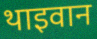
थाइवान